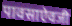
पावसाऐवजी